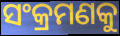
ସଂକ୍ରମଣକୁ